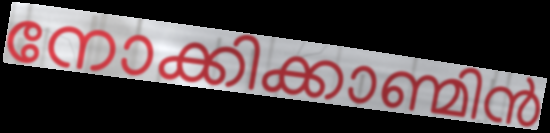
നോക്കിക്കാണ്മിൻ